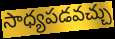
సాధ్యపడవచ్చు